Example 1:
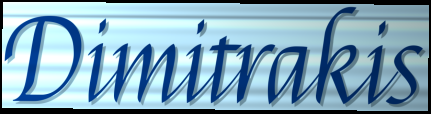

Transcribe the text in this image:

Dimitrakis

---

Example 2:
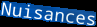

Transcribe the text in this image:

Nuisances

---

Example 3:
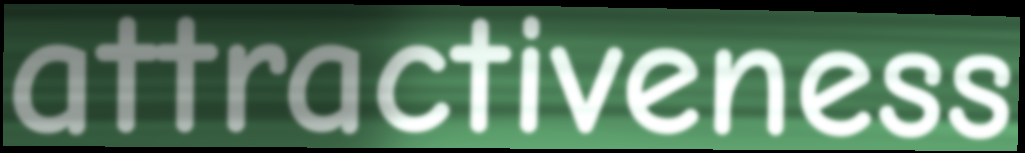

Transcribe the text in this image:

attractiveness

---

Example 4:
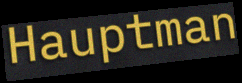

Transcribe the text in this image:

Hauptman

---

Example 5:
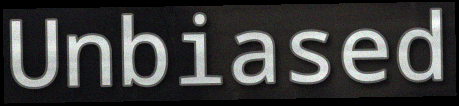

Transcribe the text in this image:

Unbiased